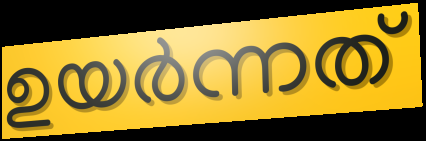
ഉയർന്നത്